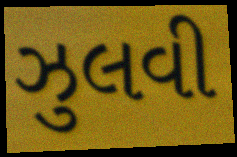
ઝુલવી